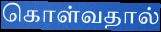
கொள்வதால்